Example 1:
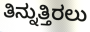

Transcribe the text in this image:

ತಿನ್ನುತ್ತಿರಲು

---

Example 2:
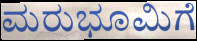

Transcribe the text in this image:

ಮರುಭೂಮಿಗೆ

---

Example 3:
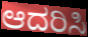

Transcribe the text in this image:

ಆದರಿಸಿ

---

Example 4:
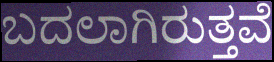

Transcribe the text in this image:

ಬದಲಾಗಿರುತ್ತವೆ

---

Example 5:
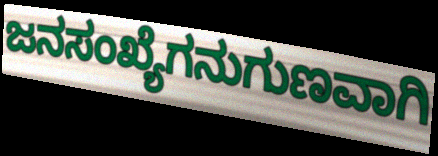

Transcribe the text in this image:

ಜನಸಂಖ್ಯೆಗನುಗುಣವಾಗಿ